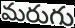
మరుగు